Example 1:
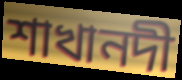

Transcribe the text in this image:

শাখানদী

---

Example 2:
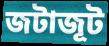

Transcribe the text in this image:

জটাজূট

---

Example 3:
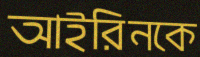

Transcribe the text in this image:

আইরিনকে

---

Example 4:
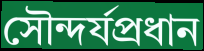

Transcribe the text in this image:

সৌন্দর্যপ্রধান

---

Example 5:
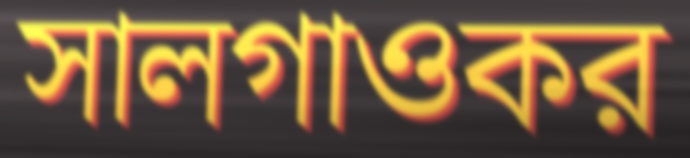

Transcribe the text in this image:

সালগাওকর